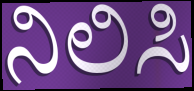
ನಿಲಿಸಿ